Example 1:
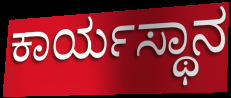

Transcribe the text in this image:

ಕಾರ್ಯಸ್ಥಾನ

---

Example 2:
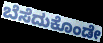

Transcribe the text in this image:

ಬೆಸೆದುಕೊಂಡೇ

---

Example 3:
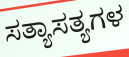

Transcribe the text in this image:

ಸತ್ಯಾಸತ್ಯಗಳ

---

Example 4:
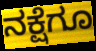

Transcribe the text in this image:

ನಕ್ಷೆಗೂ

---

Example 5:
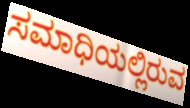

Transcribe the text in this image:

ಸಮಾಧಿಯಲ್ಲಿರುವ